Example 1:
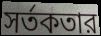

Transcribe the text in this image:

সর্তকতার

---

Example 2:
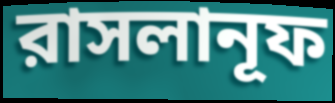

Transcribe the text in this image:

রাসলানূফ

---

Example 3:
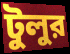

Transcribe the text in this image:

টুলুর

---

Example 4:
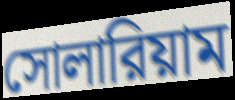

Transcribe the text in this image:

সোলারিয়াম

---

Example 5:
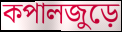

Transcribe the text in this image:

কপালজুড়ে